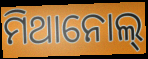
ମିଥାନୋଲ୍